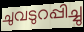
ചുവടുറപ്പിച്ചു